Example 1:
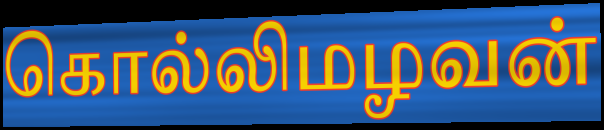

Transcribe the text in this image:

கொல்லிமழவன்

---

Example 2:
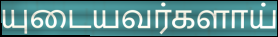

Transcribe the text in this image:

யுடையவர்களாய்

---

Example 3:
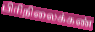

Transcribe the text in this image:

பிரிநிலைக்கண்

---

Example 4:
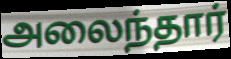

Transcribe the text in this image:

அலைந்தார்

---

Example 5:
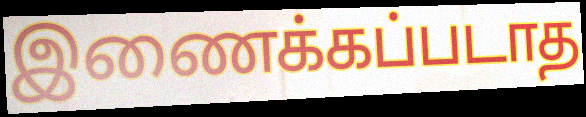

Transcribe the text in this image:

இணைக்கப்படாத